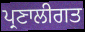
ਪ੍ਰਣਾਲੀਗਤ